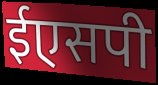
ईएसपी